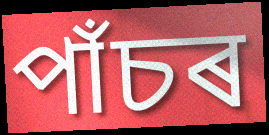
পাঁচৰ